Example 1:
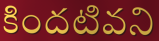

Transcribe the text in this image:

కిందటివని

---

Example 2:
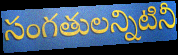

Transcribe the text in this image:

సంగతులన్నిటినీ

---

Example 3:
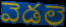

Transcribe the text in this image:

వెడలె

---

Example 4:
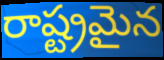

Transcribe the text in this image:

రాష్ట్రమైన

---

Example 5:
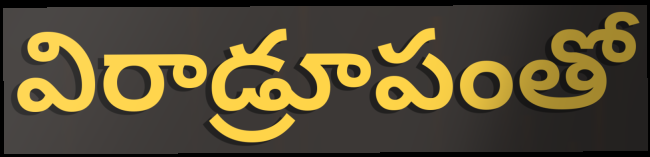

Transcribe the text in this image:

విరాడ్రూపంతో